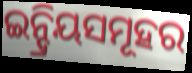
ଇନ୍ଦ୍ରିୟସମୂହର